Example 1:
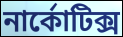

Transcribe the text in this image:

নার্কোটিক্স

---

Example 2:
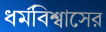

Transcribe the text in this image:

ধর্মবিশ্বাসের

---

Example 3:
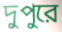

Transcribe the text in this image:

দুপুরে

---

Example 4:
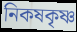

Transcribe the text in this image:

নিকষকৃষ্ণ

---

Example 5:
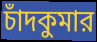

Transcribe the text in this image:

চাঁদকুমার